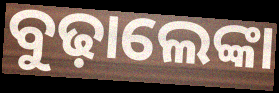
ବୁଢ଼ାଲେଙ୍କା